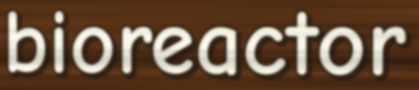
bioreactor